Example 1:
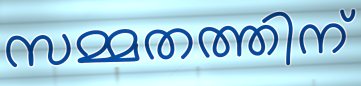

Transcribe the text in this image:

സമ്മതത്തിന്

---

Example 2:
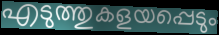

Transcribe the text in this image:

എടുത്തുകളയപ്പെടും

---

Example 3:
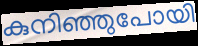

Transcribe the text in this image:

കുനിഞ്ഞുപോയി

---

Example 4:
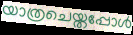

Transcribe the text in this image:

യാത്രചെയ്തപ്പോൾ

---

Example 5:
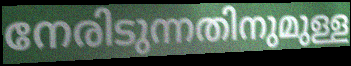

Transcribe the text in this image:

നേരിടുന്നതിനുമുള്ള